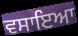
ਵਸਾਇਆ